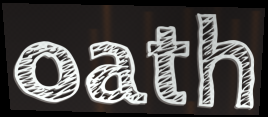
oath